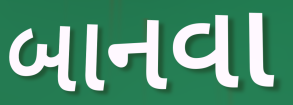
બાનવા